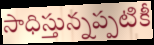
సాధిస్తున్నప్పటికీ